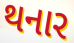
થનાર